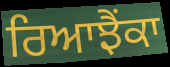
ਰਿਆਝੈਂਕਾ